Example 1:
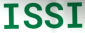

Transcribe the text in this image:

ISSI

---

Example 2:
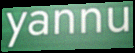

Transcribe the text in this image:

yannu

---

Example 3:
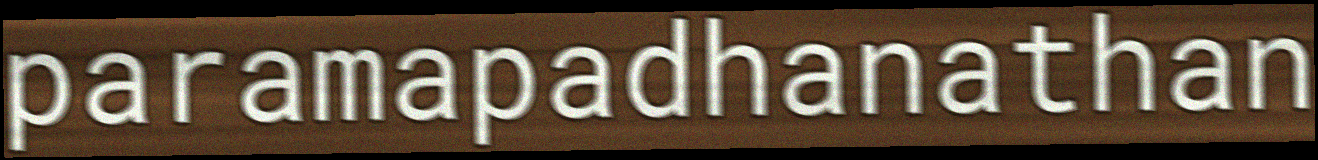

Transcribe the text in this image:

paramapadhanathan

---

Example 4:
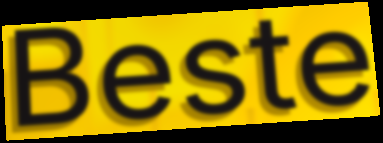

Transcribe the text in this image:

Beste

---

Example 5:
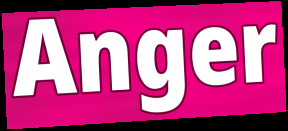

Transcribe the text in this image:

Anger